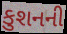
કુશનની